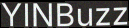
YINBuzz